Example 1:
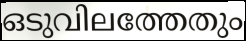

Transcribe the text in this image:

ഒടുവിലത്തേതും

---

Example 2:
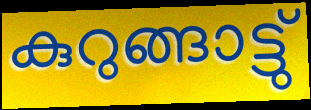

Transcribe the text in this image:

കുറുങ്ങാട്ടു്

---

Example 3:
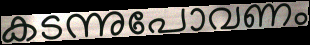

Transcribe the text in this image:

കടന്നുപോവണം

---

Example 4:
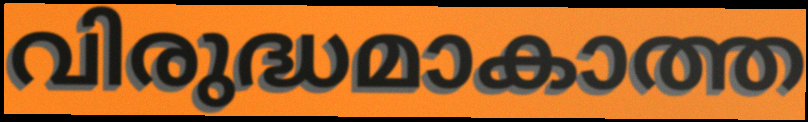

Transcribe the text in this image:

വിരുദ്ധമാകാത്ത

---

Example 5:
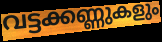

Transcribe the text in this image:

വട്ടക്കണ്ണുകളും